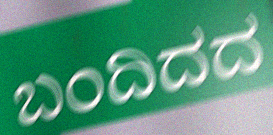
ಬಂದಿದದ